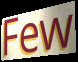
Few